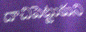
దాచిపెట్టుకుని